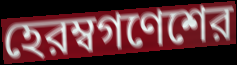
হেরম্বগণেশের